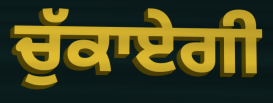
ਚੁੱਕਾਏਗੀ